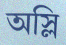
অস্লি